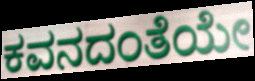
ಕವನದಂತೆಯೇ